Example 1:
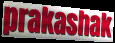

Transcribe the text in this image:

prakashak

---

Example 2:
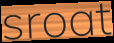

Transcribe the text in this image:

sroat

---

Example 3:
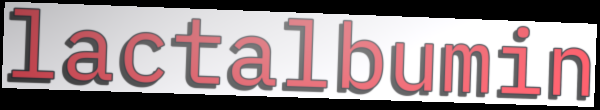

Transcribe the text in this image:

lactalbumin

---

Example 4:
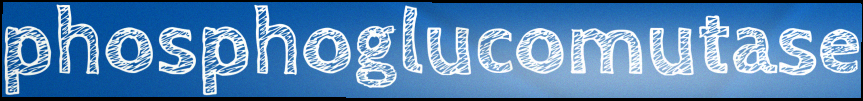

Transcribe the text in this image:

phosphoglucomutase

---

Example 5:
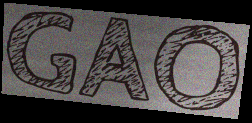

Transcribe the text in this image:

GAO